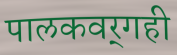
पालकवर्गही